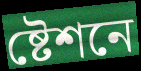
ষ্টেশনে